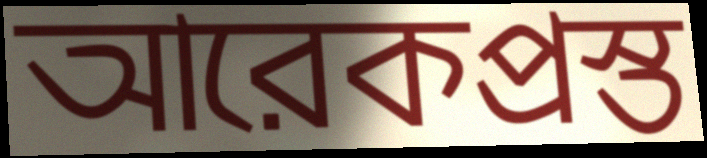
আরেকপ্রস্ত